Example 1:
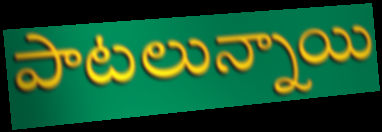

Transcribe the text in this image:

పాటలున్నాయి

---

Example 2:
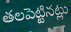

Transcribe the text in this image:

తలపెట్టినట్లు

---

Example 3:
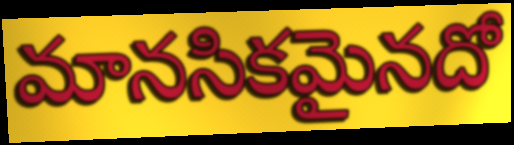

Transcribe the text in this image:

మానసికమైనదో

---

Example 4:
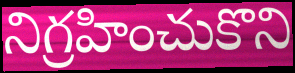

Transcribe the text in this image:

నిగ్రహించుకొని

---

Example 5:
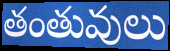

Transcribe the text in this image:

తంతువులు